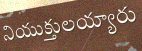
నియుక్తులయ్యారు